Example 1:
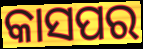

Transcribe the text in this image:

କାସପର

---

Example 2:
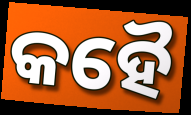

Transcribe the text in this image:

କହୈ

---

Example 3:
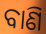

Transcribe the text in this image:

ବାଣି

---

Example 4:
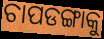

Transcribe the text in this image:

ଚାପଡଙ୍ଗାକୁ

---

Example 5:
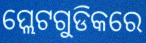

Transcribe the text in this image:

ପ୍ଲେଟଗୁଡିକରେ